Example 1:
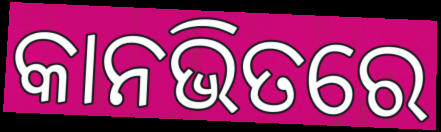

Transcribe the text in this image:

କାନଭିତରେ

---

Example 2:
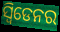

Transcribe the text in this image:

ସ୍ୱିଡେନର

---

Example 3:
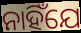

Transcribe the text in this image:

ନାହିଁଯେ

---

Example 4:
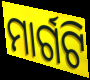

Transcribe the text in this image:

ମାର୍ଗଟି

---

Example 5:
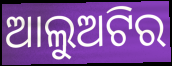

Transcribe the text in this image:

ଆଲୁଅଟିର